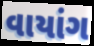
વાયાંગ